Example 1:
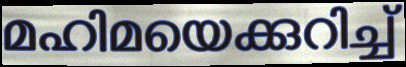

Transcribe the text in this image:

മഹിമയെക്കുറിച്ച്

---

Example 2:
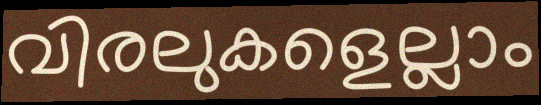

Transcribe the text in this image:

വിരലുകളെല്ലാം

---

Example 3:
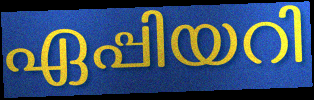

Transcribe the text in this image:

ഏപ്പിയറി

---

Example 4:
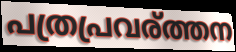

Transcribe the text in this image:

പത്രപ്രവര്ത്തന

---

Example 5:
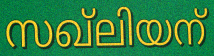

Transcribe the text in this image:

സഖ്ലിയന്